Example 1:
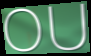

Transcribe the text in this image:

OU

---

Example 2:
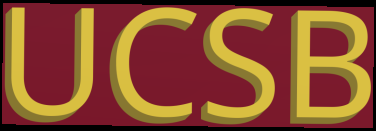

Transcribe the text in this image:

UCSB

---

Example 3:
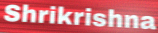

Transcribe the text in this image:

Shrikrishna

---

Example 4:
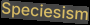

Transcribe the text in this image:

Speciesism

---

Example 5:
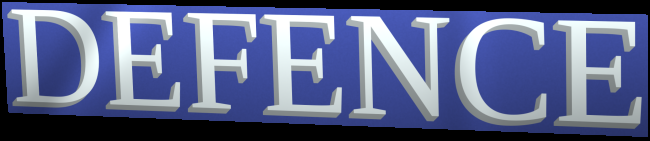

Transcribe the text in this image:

DEFENCE